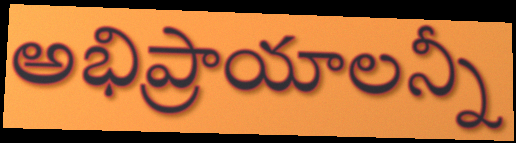
అభిప్రాయాలన్నీ